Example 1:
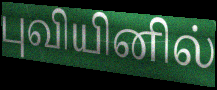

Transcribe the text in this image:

புவியினில்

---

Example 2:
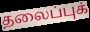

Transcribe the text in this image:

தலைப்புக்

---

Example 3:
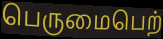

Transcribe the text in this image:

பெருமைபெற்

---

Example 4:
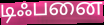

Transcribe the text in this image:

டிஃபனை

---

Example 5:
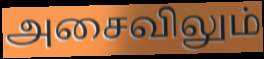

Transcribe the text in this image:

அசைவிலும்